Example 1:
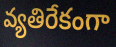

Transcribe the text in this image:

వ్యతిరేకంగా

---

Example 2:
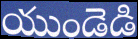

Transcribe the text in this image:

యుండెడి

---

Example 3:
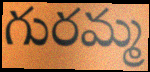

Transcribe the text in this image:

గురమ్మ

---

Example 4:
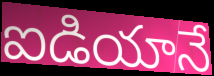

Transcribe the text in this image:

ఐడియానే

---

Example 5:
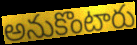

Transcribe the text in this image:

అనుకొంటారు